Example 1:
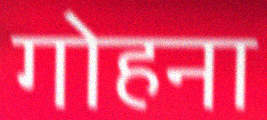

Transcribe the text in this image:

गोहना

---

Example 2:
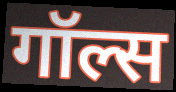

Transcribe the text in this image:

गॉल्स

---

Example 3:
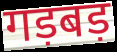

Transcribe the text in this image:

गड़बड़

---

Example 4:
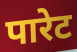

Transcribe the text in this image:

पारेट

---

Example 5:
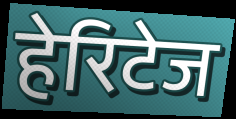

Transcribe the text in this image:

हेरिटेज